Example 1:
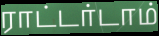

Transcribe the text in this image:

ராட்டர்டாம்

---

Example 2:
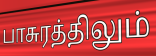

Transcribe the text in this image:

பாசுரத்திலும்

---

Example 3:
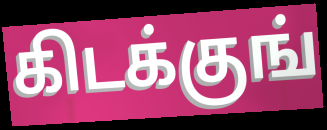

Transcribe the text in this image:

கிடக்குங்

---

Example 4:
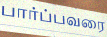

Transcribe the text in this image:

பார்ப்பவரை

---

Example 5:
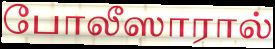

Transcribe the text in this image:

போலீஸாரால்